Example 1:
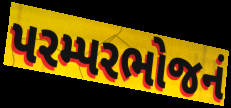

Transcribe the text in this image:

પરમ્પરભોજનં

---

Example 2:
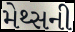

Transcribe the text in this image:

મેથ્સની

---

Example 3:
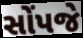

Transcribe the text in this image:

સોંપજે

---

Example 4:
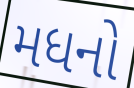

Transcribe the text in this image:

મધનો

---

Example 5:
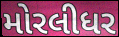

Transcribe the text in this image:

મોરલીધર